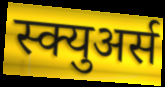
स्क्युअर्स